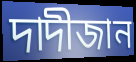
দাদীজান